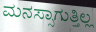
ಮನಸ್ಸಾಗುತ್ತಿಲ್ಲ